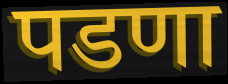
पडणा